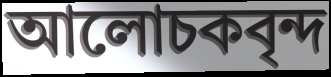
আলোচকবৃন্দ